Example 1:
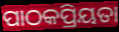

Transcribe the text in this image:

ପାଠକପ୍ରିୟତା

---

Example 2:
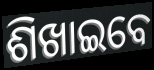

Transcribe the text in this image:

ଶିଖାଇବେ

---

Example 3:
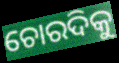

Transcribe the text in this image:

ଚୋରଦିକୁ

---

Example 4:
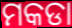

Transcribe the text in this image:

ମକଡା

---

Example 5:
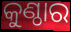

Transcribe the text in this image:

କୁଣ୍ଠାର